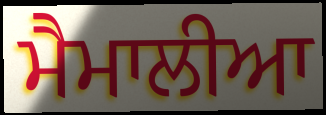
ਮੈਮਾਲੀਆ